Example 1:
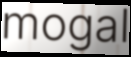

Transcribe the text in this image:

mogal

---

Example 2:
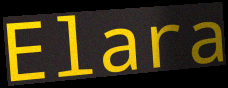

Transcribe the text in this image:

Elara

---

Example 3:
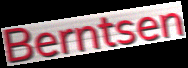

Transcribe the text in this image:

Berntsen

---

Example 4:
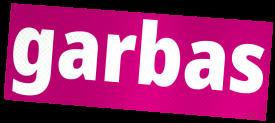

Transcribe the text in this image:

garbas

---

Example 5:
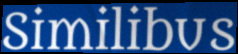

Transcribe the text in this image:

Similibus